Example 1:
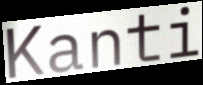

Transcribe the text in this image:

Kanti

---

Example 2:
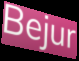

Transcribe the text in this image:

Bejur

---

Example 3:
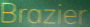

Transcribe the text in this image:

Brazier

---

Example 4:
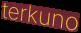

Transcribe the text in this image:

terkuno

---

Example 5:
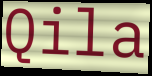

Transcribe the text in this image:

Qila